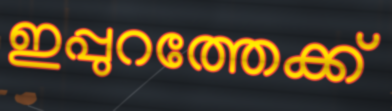
ഇപ്പുറത്തേക്ക്